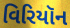
વિરિયૉન